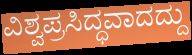
ವಿಶ್ವಪ್ರಸಿದ್ಧವಾದದ್ದು